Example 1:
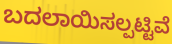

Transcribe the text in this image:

ಬದಲಾಯಿಸಲ್ಪಟ್ಟಿವೆ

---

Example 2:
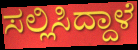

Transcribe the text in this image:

ಸಲ್ಲಿಸಿದ್ದಾಳೆ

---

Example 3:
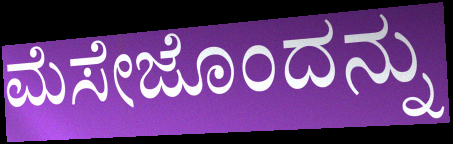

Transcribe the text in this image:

ಮೆಸೇಜೊಂದನ್ನು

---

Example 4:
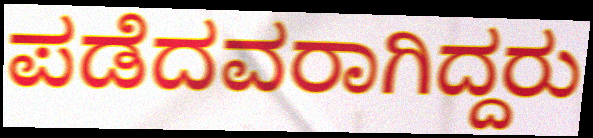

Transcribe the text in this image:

ಪಡೆದವರಾಗಿದ್ದರು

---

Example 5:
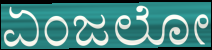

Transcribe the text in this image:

ಏಂಜಲೋ